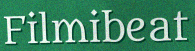
Filmibeat